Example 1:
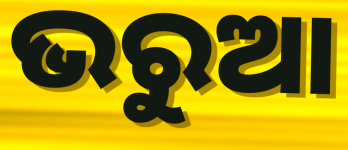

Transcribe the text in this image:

ଭରୁଆ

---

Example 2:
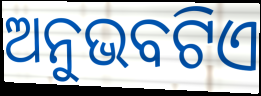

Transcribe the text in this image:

ଅନୁଭବଟିଏ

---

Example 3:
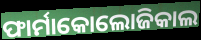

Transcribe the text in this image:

ଫାର୍ମାକୋଲୋଜିକାଲ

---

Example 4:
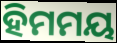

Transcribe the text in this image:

ହିମମୟ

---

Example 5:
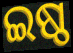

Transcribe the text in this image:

ଇଷ୍ଠ